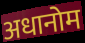
अधानोम